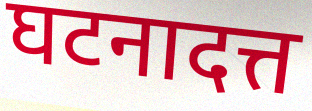
घटनादत्त